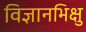
विज्ञानभिक्षु